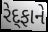
રેદ્ફાને